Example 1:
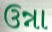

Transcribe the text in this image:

ઉન્ના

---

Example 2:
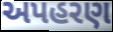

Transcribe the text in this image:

અપહરણ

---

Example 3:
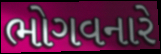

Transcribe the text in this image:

ભોગવનારે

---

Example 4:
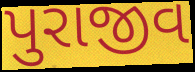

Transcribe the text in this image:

પુરાજીવ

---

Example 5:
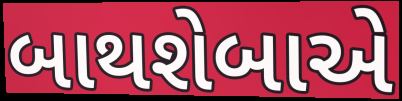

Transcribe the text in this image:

બાથશેબાએ